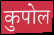
कुपोल